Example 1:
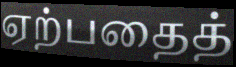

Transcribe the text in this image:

ஏற்பதைத்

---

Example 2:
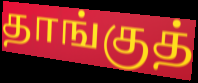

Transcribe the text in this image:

தாங்குத்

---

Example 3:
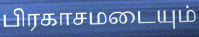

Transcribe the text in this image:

பிரகாசமடையும்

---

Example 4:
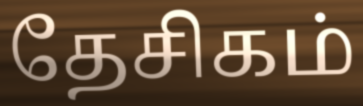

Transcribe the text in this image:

தேசிகம்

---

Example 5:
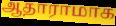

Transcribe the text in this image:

ஆதாராமாக